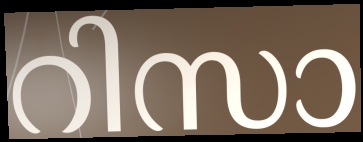
റിസാ